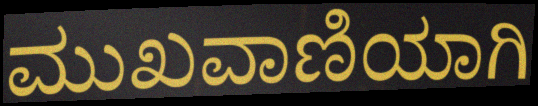
ಮುಖವಾಣಿಯಾಗಿ